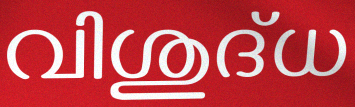
വിശുദ്‌ധ